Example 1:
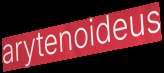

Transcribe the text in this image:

arytenoideus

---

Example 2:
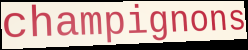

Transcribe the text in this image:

champignons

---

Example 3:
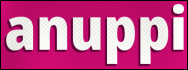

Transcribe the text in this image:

anuppi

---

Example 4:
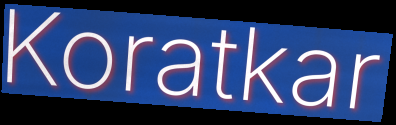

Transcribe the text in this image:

Koratkar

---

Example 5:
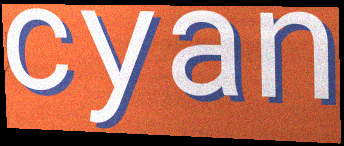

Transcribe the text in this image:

cyan